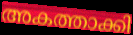
അകത്താക്കി